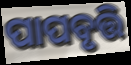
ପାପବୃତ୍ତି